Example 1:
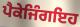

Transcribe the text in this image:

ਪੈਕੇਜਿੰਗਇਹ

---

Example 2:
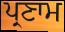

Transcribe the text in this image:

ਪ੍ਰਣਾਮ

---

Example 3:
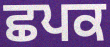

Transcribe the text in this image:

ਛਪਕ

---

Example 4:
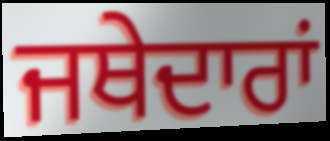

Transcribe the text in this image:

ਜਥੇਦਾਰਾਂ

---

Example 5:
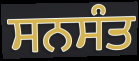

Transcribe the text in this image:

ਸਨਸੰਤ